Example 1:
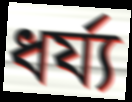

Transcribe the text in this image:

ধর্য্য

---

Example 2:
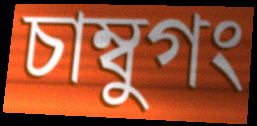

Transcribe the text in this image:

চাম্বুগং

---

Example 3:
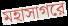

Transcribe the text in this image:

মহাসাগরে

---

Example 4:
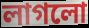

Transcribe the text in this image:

লাগলো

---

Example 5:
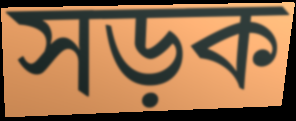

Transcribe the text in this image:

সড়ক